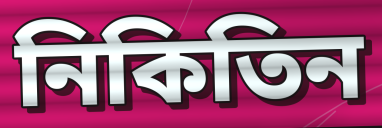
নিকিতিন